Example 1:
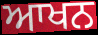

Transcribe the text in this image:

ਆਖਨ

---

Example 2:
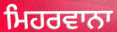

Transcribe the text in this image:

ਮਿਹਰਵਾਨਾ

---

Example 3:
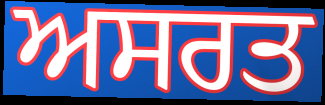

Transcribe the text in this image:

ਅਸਰਤ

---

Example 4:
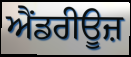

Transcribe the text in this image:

ਐਂਡਰੀਊਜ਼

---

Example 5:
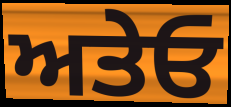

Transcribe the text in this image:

ਅਤੇਓ